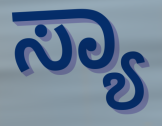
ಸ್ಯಾ